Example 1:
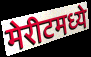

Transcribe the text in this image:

मेरीटमध्ये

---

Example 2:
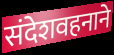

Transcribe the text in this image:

संदेशवहनाने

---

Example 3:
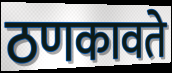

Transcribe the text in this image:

ठणकावते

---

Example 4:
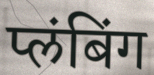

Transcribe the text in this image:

प्लंबिंग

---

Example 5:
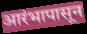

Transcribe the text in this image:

आरंभापासून